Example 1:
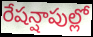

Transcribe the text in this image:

రేషన్షాపుల్లో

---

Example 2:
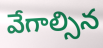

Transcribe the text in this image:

వేగాల్సిన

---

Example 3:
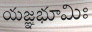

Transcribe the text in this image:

యజ్ఞభూమిః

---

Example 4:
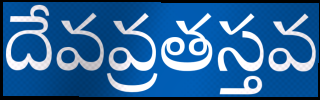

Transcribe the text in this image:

దేవవ్రతస్తవ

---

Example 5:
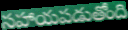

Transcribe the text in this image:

సహాయపడుతోంది